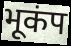
भूकंप